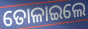
ତୋଳାଇଲେ